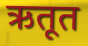
ऋतूत